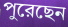
পুরেছেন